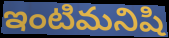
ఇంటిమనిషి